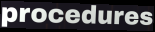
procedures